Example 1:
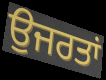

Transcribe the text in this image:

ਉਜਰਤਾਂ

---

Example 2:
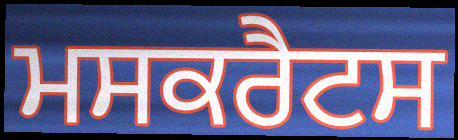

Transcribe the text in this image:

ਮਸਕਰੈਟਸ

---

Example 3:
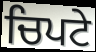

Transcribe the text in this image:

ਚਿਪਟੇ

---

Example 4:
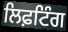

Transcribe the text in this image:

ਲਿਫ਼ਟਿੰਗ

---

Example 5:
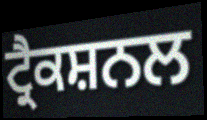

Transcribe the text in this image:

ਟ੍ਰੈਕਸ਼ਨਲ